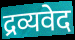
द्रव्यवेद